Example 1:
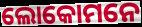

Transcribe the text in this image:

ଲୋକୋମନେ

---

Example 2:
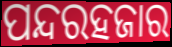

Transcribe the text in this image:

ପନ୍ଦରହଜାର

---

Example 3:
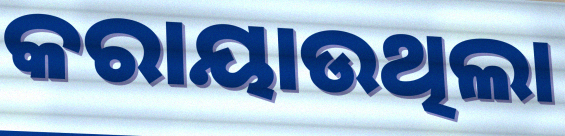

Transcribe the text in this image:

କରାୟାଉଥିଲା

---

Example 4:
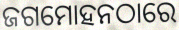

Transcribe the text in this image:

ଜଗମୋହନଠାରେ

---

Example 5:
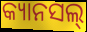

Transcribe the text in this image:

କ୍ୟାନସଲ୍